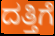
ದತ್ತಿಗೆ